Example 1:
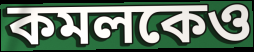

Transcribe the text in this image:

কমলকেও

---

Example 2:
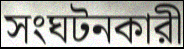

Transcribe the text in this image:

সংঘটনকারী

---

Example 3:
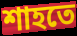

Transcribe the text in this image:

শাহতে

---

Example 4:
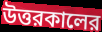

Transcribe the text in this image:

উত্তরকালের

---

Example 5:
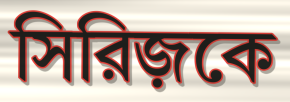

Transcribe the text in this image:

সিরিজ়কে